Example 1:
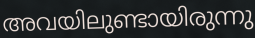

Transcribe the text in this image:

അവയിലുണ്ടായിരുന്നു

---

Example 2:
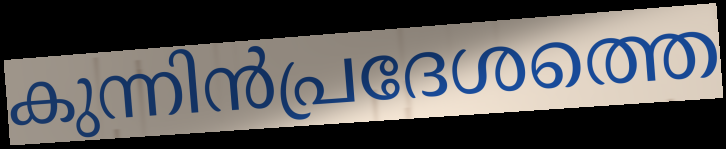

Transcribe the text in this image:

കുന്നിൻപ്രദേശത്തെ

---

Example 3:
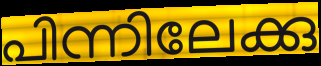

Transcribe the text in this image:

പിന്നിലേക്കു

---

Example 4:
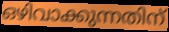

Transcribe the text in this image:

ഒഴിവാക്കുന്നതിന്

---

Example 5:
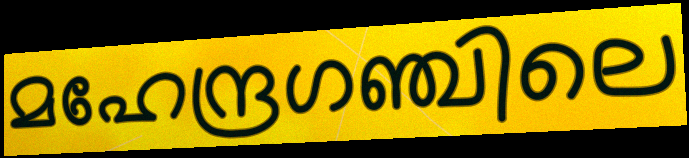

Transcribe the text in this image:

മഹേന്ദ്രഗഞ്ചിലെ